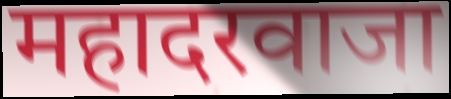
महादरवाजा